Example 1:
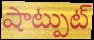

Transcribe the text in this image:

షాట్పుట్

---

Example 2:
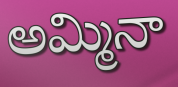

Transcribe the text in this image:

అమ్మినా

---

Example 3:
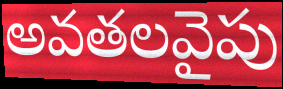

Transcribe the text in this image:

అవతలవైపు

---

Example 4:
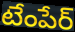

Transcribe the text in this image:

టేంపేర్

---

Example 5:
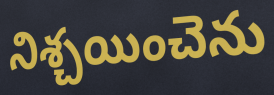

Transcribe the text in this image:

నిశ్చయించెను